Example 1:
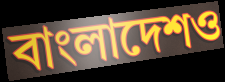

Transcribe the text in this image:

বাংলাদেশও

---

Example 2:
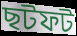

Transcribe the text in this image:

ছটফট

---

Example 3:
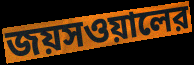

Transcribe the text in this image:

জয়সওয়ালের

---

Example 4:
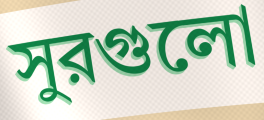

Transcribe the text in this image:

সুরগুলো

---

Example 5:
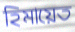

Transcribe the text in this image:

হিমায়েত